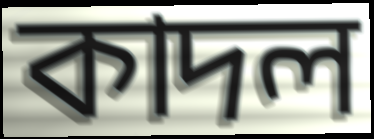
কাদল